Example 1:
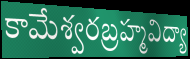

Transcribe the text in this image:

కామేశ్వరబ్రహ్మవిద్యా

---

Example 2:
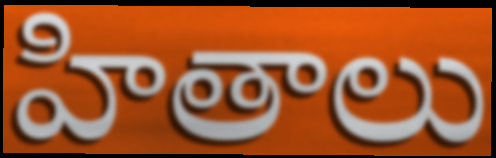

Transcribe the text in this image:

హితాలు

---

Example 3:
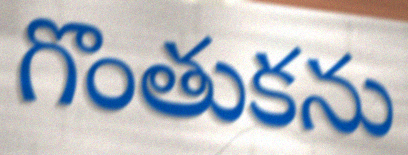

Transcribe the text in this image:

గొంతుకను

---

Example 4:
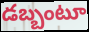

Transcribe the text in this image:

డబ్బంటూ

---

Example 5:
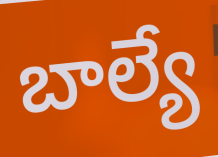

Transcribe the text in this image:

బాల్యే